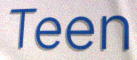
Teen